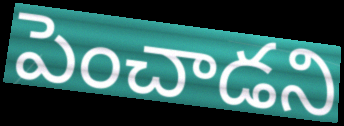
పెంచాడని